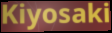
Kiyosaki